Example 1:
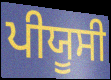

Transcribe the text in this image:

ਪੀਯੂਸੀ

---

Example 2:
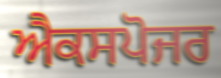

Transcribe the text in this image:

ਐਕਸਪੋਜਰ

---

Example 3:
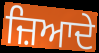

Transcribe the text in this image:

ਜ਼ਿਆਦੇ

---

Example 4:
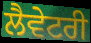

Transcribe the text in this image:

ਲੈਵੇਟਰੀ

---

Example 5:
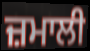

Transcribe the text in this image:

ਜ਼ਮਾਲੀ